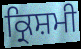
ਕ੍ਰਿਸ਼ਮੀ